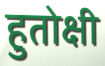
हुतोक्षी